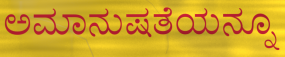
ಅಮಾನುಷತೆಯನ್ನೂ